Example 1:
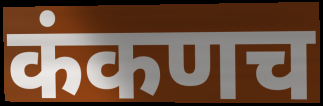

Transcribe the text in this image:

कंकणच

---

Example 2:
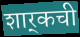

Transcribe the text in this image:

शार्कची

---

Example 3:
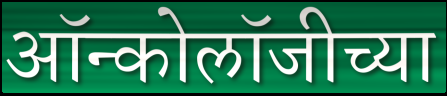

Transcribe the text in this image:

ऑन्कोलॉजीच्या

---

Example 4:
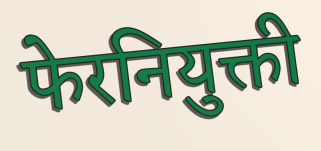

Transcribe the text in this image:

फेरनियुक्ती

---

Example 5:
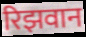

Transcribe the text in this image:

रिझवान